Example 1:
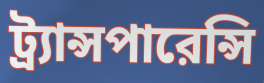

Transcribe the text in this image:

ট্র্যান্সপারেন্সি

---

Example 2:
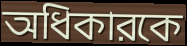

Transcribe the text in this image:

অধিকারকে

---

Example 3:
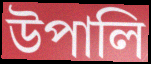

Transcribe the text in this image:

উপালি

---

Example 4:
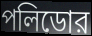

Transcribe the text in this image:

পলিডোর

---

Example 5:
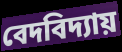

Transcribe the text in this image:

বেদবিদ্যায়